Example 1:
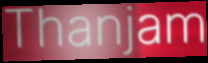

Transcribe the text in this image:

Thanjam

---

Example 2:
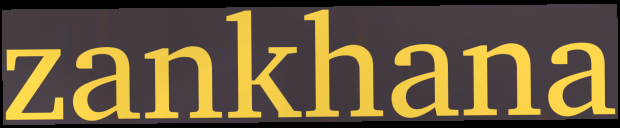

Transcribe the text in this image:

zankhana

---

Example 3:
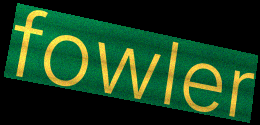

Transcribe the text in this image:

fowler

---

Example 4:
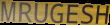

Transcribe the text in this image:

MRUGESH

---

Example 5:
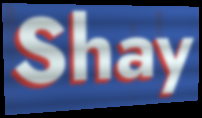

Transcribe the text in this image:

Shay